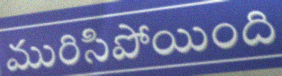
మురిసిపోయింది